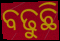
ବଢୁଛି